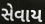
સેવાય